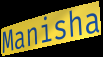
Manisha